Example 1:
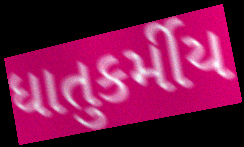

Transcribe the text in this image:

ધાતુકર્મીય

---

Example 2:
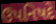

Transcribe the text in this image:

ઉપનિષદે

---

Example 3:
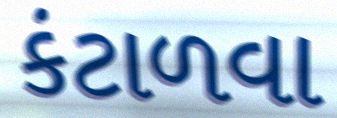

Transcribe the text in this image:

કંટાળવા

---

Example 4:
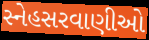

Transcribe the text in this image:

સ્નેહસરવાણીઓ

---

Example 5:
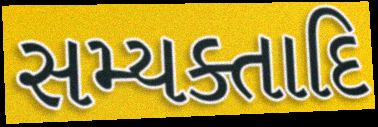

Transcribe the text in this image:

સમ્યક્તાદિ